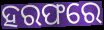
ହରଫରେ